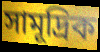
সামূদ্ৰিক